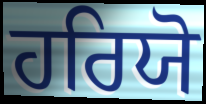
ਹਰਿਯੋ